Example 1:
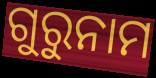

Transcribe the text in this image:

ଗୁରୁନାମ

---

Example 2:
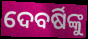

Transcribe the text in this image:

ଦେବର୍ଷିଙ୍କୁ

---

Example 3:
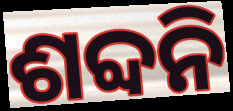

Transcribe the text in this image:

ଶବ୍ଦନି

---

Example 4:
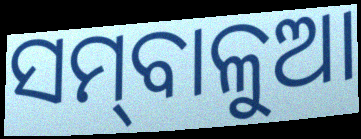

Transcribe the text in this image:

ସମ୍‌ବାଳୁଆ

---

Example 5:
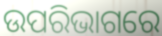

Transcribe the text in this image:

ଉପରିଭାଗରେ